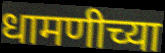
धामणीच्या